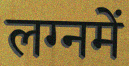
लग्नमें